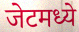
जेटमध्ये